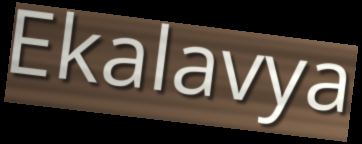
Ekalavya